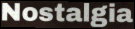
Nostalgia